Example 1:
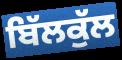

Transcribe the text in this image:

ਬਿੱਲਕੁੱਲ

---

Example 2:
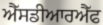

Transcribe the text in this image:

ਐੱਸਡੀਆਰਐੱਫ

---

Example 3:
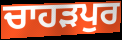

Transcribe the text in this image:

ਚਾਹਡ਼ਪੁਰ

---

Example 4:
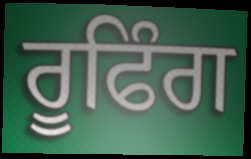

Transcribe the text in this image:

ਰੂਫਿੰਗ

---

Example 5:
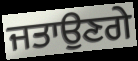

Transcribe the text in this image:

ਜਤਾਉਣਗੇ